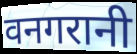
वनगरानी